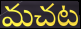
మచట